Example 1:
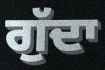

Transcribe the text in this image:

ਗੁੱਦਾ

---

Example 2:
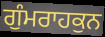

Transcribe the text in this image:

ਗੁੰਮਰਾਹਕੁਨ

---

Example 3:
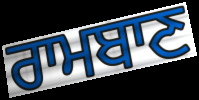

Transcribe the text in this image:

ਰਾਮਬਾਣ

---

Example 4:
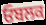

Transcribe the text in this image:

ਓਬਲਕ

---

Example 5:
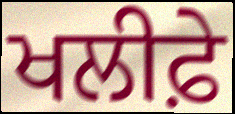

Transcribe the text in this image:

ਖਲੀਫ਼ੇ